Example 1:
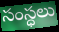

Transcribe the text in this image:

సంస్ధలు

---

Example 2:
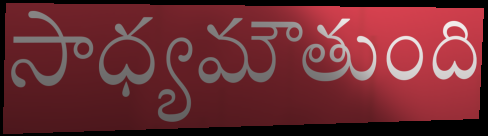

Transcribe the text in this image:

సాధ్యమౌతుంది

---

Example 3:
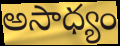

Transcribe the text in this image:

అసాధ్యం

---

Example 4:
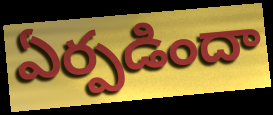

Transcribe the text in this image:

ఏర్పడిందా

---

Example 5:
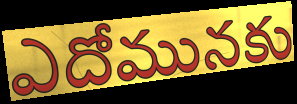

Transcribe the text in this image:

ఎదోమునకు